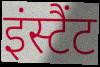
इंस्टैंट